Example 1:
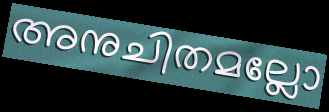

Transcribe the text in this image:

അനുചിതമല്ലോ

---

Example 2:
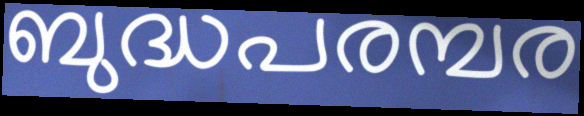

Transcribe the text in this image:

ബുദ്ധപരമ്പര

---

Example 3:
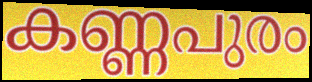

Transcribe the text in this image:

കണ്ണപുരം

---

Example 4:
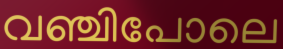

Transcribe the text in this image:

വഞ്ചിപോലെ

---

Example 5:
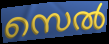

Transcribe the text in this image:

സെൽ